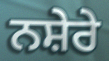
ਨਸ਼ੇਰੇ